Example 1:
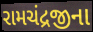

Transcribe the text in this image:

રામચંદ્રજીના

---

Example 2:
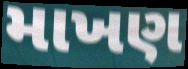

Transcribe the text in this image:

માખણ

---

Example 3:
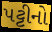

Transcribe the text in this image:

પટ્ટીનો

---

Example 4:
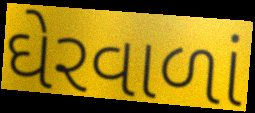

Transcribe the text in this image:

ઘેરવાળાં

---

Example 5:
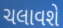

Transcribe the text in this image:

ચલાવશે